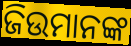
ଜିଉମାନଙ୍କ